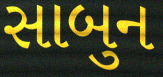
સાબુન